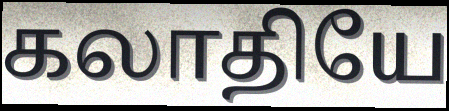
கலாதியே